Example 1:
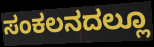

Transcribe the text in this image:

ಸಂಕಲನದಲ್ಲೂ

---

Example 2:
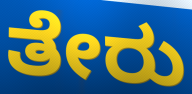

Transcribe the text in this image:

ತೇರು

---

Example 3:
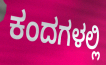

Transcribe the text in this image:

ಕಂದಗಳಲ್ಲಿ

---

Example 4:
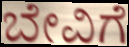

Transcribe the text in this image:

ಬೇವಿಗೆ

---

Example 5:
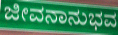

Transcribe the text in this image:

ಜೀವನಾನುಭವ